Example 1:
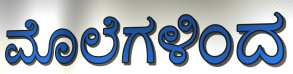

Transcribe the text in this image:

ಮೊಲೆಗಳಿಂದ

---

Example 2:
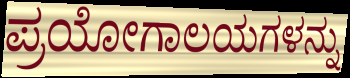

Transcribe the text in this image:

ಪ್ರಯೋಗಾಲಯಗಳನ್ನು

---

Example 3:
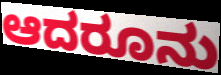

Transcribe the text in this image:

ಆದರೂನು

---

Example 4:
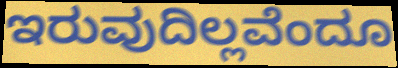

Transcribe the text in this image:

ಇರುವುದಿಲ್ಲವೆಂದೂ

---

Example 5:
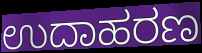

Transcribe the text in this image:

ಉದಾಹರಣ